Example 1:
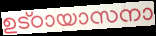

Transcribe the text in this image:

ഉട്ഠായാസനാ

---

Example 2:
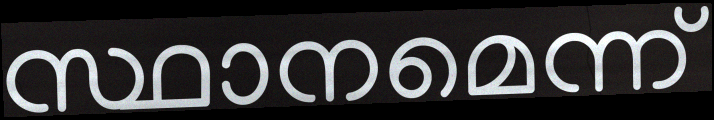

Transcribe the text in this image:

സ്ഥാനമെന്ന്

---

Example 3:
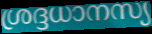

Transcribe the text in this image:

ശ്രദ്ദധാനസ്യ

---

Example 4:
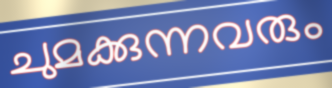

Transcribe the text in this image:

ചുമക്കുന്നവരും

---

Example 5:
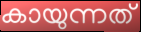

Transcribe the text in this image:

കായുന്നത്